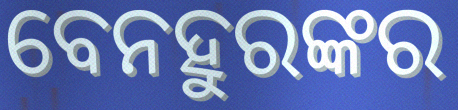
ବେନହୁରଙ୍କର